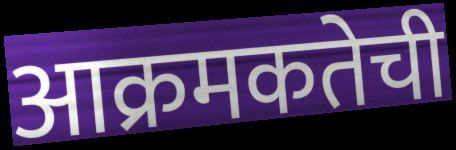
आक्रमकतेची